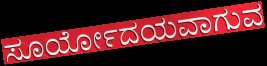
ಸೂರ್ಯೋದಯವಾಗುವ